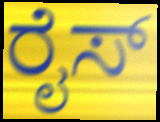
ರೈಸ್